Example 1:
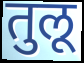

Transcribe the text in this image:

तुलू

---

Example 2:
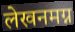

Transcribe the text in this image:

लेखनमग्न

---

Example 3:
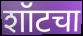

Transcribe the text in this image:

शॉटचा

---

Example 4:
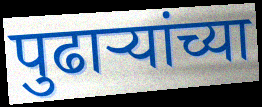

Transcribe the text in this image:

पुढार्‍यांच्या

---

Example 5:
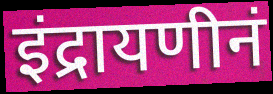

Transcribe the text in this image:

इंद्रायणीनं